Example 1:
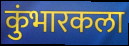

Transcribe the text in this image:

कुंभारकला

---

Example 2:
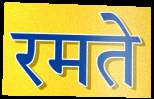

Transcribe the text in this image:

रमते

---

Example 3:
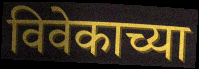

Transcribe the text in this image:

विवेकाच्या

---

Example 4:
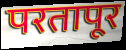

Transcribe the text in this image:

परतापूर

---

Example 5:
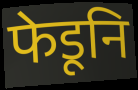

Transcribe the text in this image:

फेडूनि